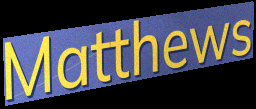
Matthews